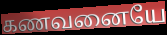
கணவனையே